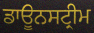
ਡਾਊਨਸਟ੍ਰੀਮ